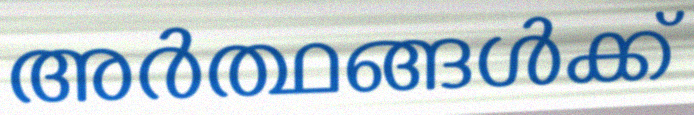
അർത്ഥങ്ങൾക്ക്